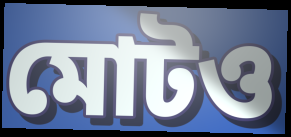
মোটও